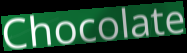
Chocolate